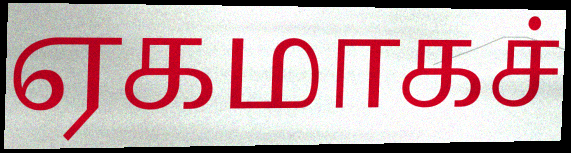
ஏகமாகச்